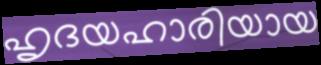
ഹൃദയഹാരിയായ